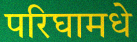
परिघामधे